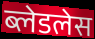
ब्लेडलेस